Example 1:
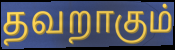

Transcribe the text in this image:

தவறாகும்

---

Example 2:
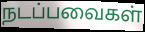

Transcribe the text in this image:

நடப்பவைகள்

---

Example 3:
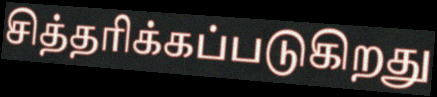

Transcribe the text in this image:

சித்தரிக்கப்படுகிறது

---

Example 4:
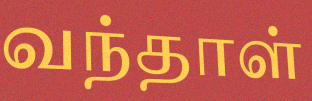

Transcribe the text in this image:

வந்தாள்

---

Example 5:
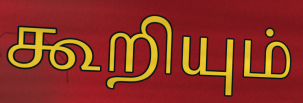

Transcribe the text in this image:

கூறியும்